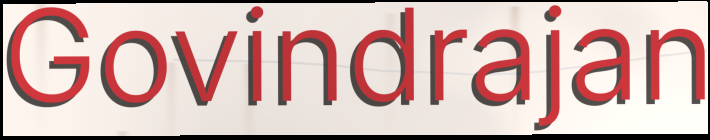
Govindrajan